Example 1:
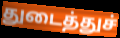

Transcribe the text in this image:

துடைத்துச்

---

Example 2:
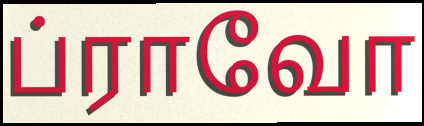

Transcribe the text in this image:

ப்ராவோ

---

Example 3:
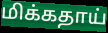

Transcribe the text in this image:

மிக்கதாய்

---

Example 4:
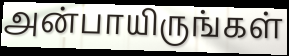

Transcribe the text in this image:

அன்பாயிருங்கள்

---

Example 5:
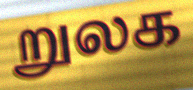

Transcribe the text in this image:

றுலக